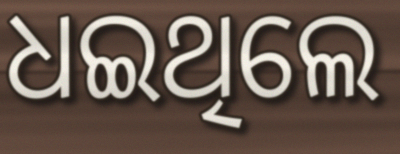
ଧଇଥିଲେ